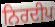
ਨਿਰਦੀਪ